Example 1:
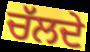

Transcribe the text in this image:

ਚੱਲਦੇ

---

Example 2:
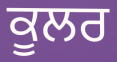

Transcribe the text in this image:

ਕੂਲਰ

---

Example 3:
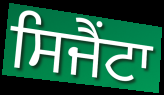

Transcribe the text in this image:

ਸਿਜੈਂਟਾ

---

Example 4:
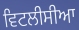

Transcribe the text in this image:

ਵਿਟਲੀਸੀਆ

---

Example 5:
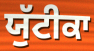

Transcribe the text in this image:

ਯੁੱਟੀਕਾ